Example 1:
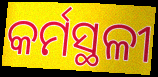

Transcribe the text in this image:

କର୍ମସ୍ଥଳୀ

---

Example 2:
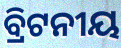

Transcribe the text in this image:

ବ୍ରିଟନୀୟ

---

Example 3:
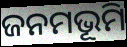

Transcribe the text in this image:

ଜନମଭୂମି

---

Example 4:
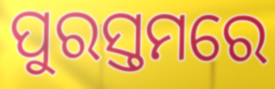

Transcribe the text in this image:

ପୁରସ୍ତମରେ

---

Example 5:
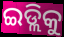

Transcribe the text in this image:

ଇଡ୍ଲିକୁ